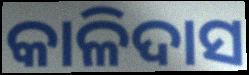
କାଳିଦାସ